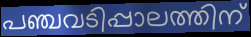
പഞ്ചവടിപ്പാലത്തിന്